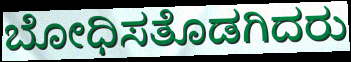
ಬೋಧಿಸತೊಡಗಿದರು